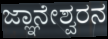
ಜ್ಞಾನೇಶ್ವರನ